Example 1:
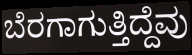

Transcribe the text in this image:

ಬೆರಗಾಗುತ್ತಿದ್ದೆವು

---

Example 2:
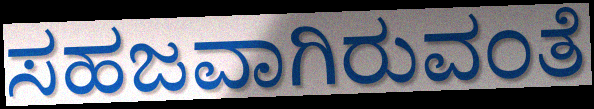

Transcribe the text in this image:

ಸಹಜವಾಗಿರುವಂತೆ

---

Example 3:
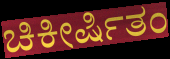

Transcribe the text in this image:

ಚಿಕೀರ್ಷಿತಂ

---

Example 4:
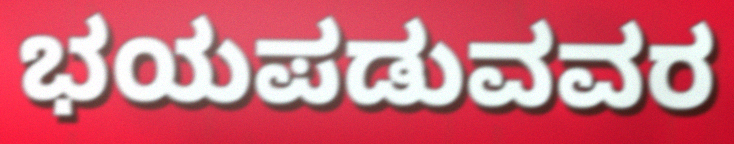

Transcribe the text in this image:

ಭಯಪಡುವವರ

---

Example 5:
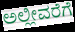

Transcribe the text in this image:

ಅಲ್ಲೀವರೆಗೆ